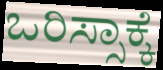
ಒರಿಸ್ಸಾಕ್ಕೆ